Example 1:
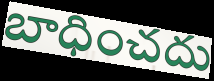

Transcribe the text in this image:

బాధించదు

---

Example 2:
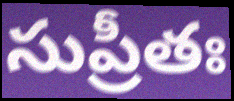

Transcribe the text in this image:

సుప్రీతః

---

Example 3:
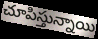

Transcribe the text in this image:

చూపిస్తున్నాయి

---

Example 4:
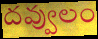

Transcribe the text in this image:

దవ్వులం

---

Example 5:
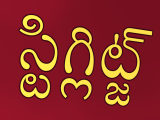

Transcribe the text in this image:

స్టిగ్లిట్జ్